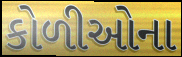
કોળીઓના